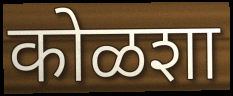
कोळशा